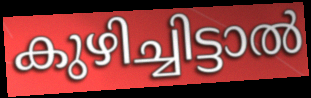
കുഴിച്ചിട്ടാൽ